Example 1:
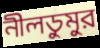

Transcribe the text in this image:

নীলডুমুর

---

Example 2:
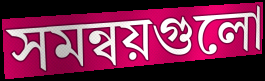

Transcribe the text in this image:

সমন্বয়গুলো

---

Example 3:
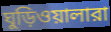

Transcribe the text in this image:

ঘুড়িওয়ালারা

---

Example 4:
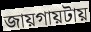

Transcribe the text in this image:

জায়গায়টায়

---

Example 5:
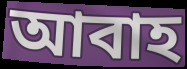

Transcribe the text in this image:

আবাহ